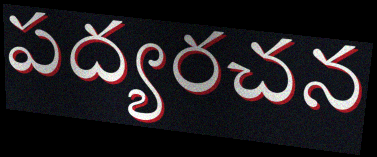
పద్యరచన